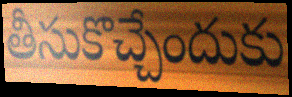
తీసుకొచ్చేందుకు